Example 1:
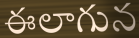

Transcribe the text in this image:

ఈలాగున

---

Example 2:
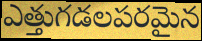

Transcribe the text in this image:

ఎత్తుగడలపరమైన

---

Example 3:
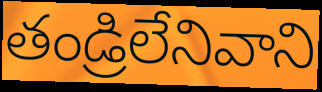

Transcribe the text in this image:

తండ్రిలేనివాని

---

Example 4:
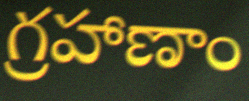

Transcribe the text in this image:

గ్రహాణాం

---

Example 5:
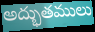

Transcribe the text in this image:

అద్భుతములు